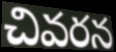
చివరన